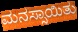
ಮನಸ್ಸಾಯಿತು